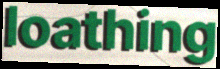
loathing